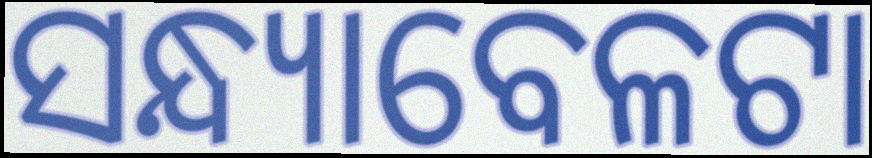
ସନ୍ଧ୍ୟାବେଳଟା